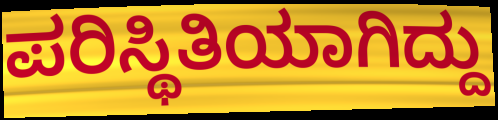
ಪರಿಸ್ಥಿತಿಯಾಗಿದ್ದು